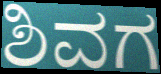
ಶಿವಗ